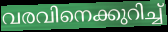
വരവിനെക്കുറിച്ച്